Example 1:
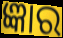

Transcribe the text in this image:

ଜ୍ଞାର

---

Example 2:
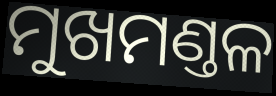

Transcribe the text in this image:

ମୁଖମଣ୍ତଳ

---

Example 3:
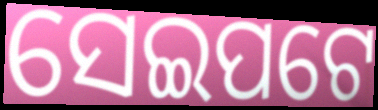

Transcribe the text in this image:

ସେଇପଟେ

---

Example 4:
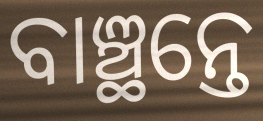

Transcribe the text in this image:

ବାଞ୍ଛନ୍ତେ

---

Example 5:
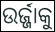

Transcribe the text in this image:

ଉର୍ଜ୍ଜାକୁ